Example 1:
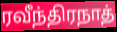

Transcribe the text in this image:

ரவீந்திரநாத்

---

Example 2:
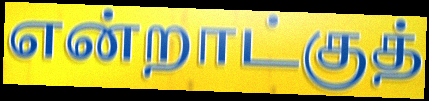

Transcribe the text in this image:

என்றாட்குத்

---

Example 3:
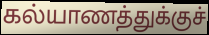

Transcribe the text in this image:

கல்யாணத்துக்குச்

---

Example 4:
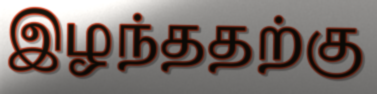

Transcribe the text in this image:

இழந்ததற்கு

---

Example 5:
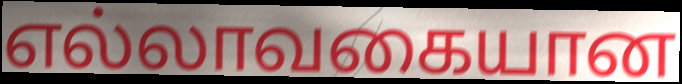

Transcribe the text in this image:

எல்லாவகையான